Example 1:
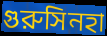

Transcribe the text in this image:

গুরুসিনহা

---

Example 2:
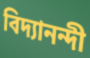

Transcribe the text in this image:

বিদ্যানন্দী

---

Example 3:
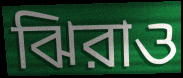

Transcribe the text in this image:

ঝিরাও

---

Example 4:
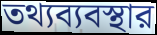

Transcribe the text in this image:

তথ্যব্যবস্থার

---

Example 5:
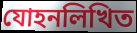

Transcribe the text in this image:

যোহনলিখিত